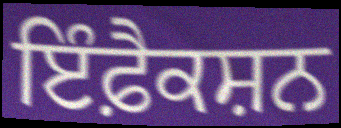
ਇੰਫ਼ੈਕਸ਼ਨ